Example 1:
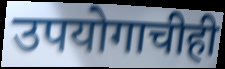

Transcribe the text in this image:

उपयोगाचीही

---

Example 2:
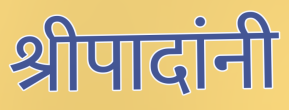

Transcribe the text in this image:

श्रीपादांनी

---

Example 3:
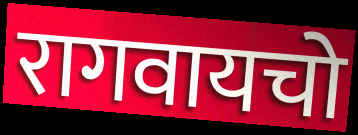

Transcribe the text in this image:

रागवायचो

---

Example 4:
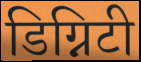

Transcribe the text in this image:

डिग्निटी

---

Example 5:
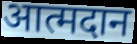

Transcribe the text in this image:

आत्मदान